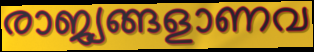
രാജ്യങ്ങളാണവ